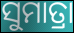
ସୁମାତ୍ରା